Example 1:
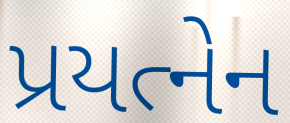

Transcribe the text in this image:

પ્રયત્નેન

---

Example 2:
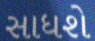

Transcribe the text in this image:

સાધશે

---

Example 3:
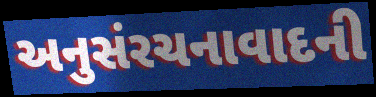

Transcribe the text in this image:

અનુસંરચનાવાદની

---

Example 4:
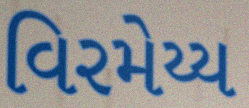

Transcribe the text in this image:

વિરમેય્ય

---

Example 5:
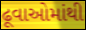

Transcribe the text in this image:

ઢૂવાઓમાંથી